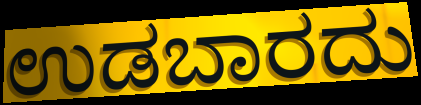
ಉಡಬಾರದು